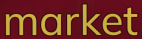
market